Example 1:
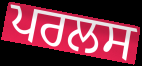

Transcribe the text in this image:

ਪਰਲਸ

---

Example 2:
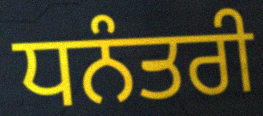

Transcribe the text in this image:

ਧਨੰਤਰੀ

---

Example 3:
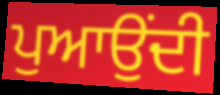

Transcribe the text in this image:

ਪੁਆਉਂਦੀ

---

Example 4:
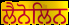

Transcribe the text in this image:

ਲੈਨੋਲਿਨ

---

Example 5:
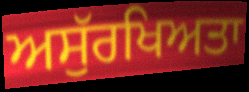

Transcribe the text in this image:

ਅਸੁੱਰਖਿਅਤਾ